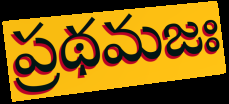
ప్రథమజః